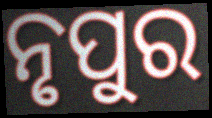
ନୃପୁର